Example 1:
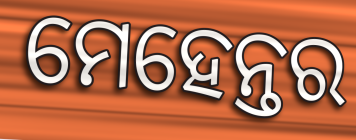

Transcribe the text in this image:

ମେହେନ୍ତର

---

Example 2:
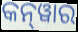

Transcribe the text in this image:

କନ୍‍ୱାର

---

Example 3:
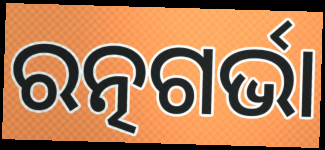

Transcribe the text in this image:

ରତ୍ନଗର୍ଭା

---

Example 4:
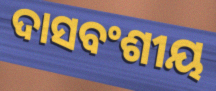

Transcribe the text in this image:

ଦାସବଂଶୀୟ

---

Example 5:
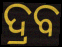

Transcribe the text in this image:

ଦ୍ରବ